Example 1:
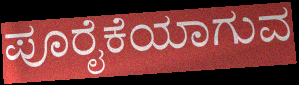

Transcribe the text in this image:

ಪೂರೈಕೆಯಾಗುವ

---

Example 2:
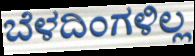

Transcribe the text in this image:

ಬೆಳದಿಂಗಳಿಲ್ಲ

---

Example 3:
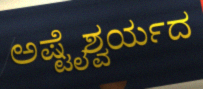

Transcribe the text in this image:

ಅಷ್ಟೈಶ್ವರ್ಯದ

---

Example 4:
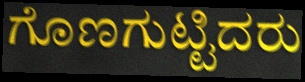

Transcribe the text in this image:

ಗೊಣಗುಟ್ಟಿದರು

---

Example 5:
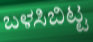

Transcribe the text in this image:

ಬಳಸಿಬಿಟ್ಟ